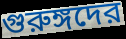
গুরুঙ্গদের